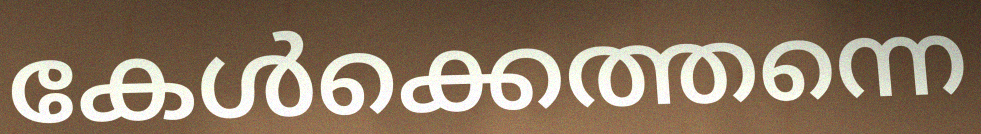
കേൾക്കെത്തന്നെ